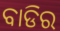
ବାଡିର